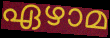
ഏഴാമ